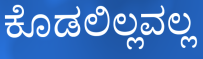
ಕೊಡಲಿಲ್ಲವಲ್ಲ